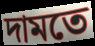
দামতে